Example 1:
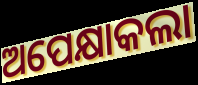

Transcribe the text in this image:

ଅପେକ୍ଷାକଲା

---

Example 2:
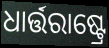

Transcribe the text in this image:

ଧାର୍ତ୍ତରାଷ୍ଟ୍ରେ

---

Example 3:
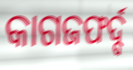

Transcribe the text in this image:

କାଗଜଫର୍ଦ୍ଦ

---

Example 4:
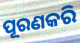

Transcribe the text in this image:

ପୂରଣକରି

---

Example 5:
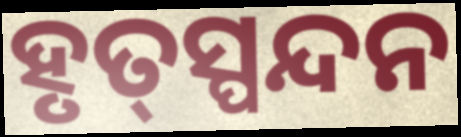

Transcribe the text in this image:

ହୃତ୍‌ସ୍ପନ୍ଦନ